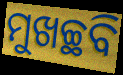
ମୁଖଚ୍ଛବି